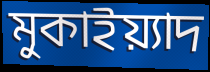
মুকাইয়্যাদ